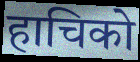
हाचिको